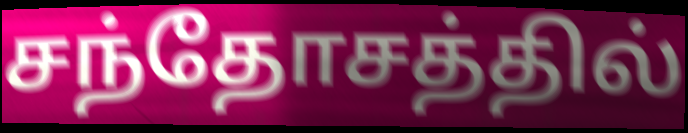
சந்தோசத்தில்